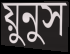
য়ুনুস